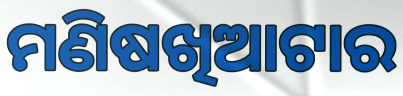
ମଣିଷଖିଆଟାର